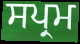
ਸਪ੍ਰਮ